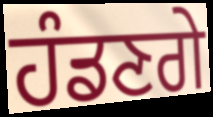
ਹੰਡਣਗੇ